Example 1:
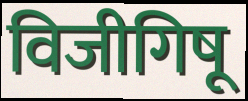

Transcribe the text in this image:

विजीगिषू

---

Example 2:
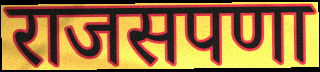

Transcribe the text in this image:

राजसपणा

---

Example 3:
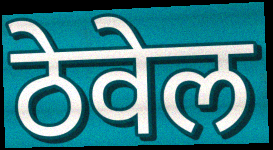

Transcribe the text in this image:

ठेवेल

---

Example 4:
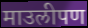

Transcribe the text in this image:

माउलीपण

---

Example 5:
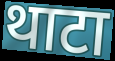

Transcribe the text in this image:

थाटा